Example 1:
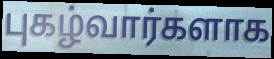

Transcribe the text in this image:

புகழ்வார்களாக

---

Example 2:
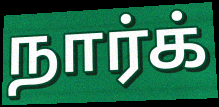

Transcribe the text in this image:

நார்க்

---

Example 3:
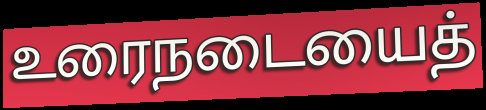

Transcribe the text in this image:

உரைநடையைத்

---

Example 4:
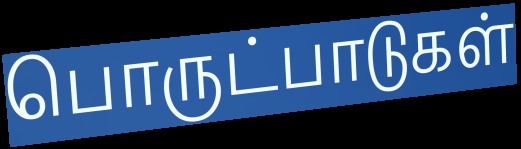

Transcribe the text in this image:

பொருட்பாடுகள்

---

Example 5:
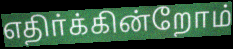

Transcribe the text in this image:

எதிர்க்கின்றோம்